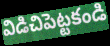
విడిచిపెట్టకండి